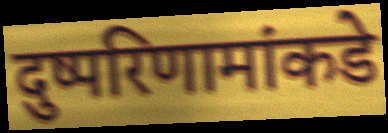
दुष्परिणामांकडे